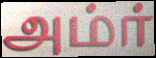
அம்ர்